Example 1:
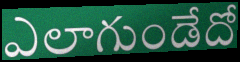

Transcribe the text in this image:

ఎలాగుండేదో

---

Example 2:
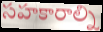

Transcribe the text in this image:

సహకారాల్ని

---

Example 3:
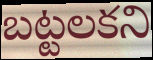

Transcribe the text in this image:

బట్టలకని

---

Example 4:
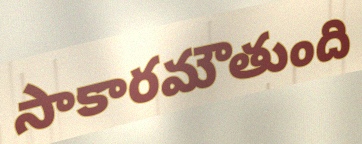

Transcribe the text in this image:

సాకారమౌతుంది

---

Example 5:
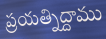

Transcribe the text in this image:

ప్రయత్నిద్దాము